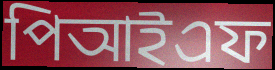
পিআইএফ